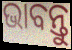
ଭାବନ୍ତୁ